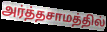
அர்த்தசாமத்தில்